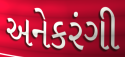
અનેકરંગી